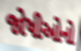
જોષીઓનો